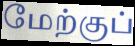
மேற்குப்